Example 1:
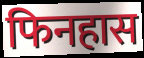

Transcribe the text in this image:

फिनहास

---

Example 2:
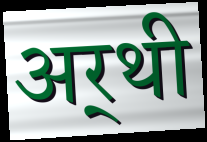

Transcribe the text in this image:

अर्थी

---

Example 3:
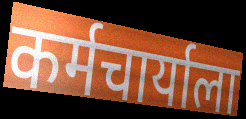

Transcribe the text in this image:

कर्मचार्याला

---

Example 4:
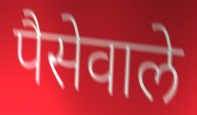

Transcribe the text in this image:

पैसेवाले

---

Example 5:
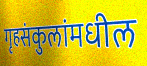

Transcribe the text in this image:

गृहसंकुलांमधील